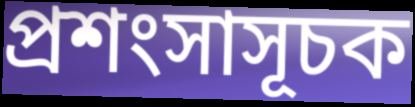
প্ৰশংসাসূচক